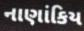
નાણાંકિય